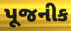
પૂજનીક